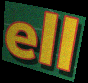
ell